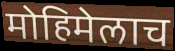
मोहिमेलाच